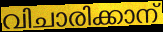
വിചാരിക്കാന്